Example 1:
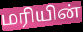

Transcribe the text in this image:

மரியின்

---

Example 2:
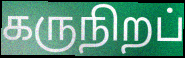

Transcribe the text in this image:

கருநிறப்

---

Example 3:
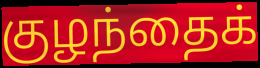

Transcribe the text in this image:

குழந்தைக்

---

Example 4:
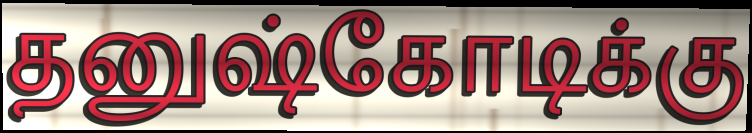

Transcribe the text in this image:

தனுஷ்கோடிக்கு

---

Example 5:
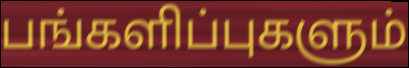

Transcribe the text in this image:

பங்களிப்புகளும்